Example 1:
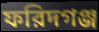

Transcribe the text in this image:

ফরিদগঞ্জ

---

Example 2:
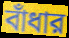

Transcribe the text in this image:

বাঁধার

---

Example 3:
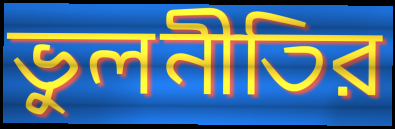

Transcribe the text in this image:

ভুলনীতির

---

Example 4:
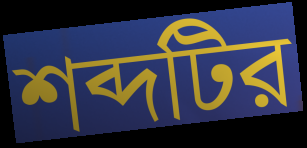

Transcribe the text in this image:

শব্দটির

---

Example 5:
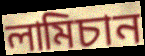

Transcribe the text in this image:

লামিচান